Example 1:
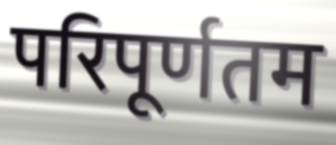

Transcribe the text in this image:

परिपूर्णतम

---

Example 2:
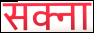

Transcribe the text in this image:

सक्ना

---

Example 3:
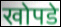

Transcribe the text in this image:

खोपडे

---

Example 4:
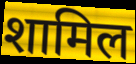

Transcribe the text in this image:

शामिल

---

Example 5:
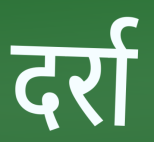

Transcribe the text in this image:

दर्रा